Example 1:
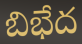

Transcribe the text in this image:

బిభేద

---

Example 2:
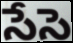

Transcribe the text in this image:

సేసె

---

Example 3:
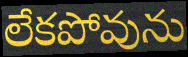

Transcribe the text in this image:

లేకపోవును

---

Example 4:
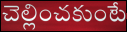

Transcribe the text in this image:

చెల్లించకుంటే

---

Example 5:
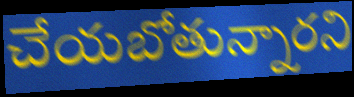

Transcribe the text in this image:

చేయబోతున్నారని